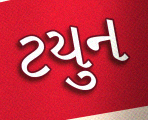
ટયુન